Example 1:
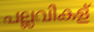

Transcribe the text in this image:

പല്ലവികള്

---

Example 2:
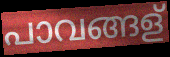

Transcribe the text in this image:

പാവങ്ങള്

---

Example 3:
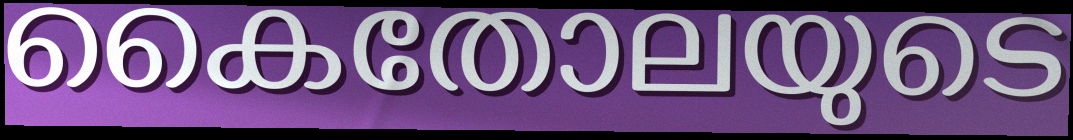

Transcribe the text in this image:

കൈതോലയുടെ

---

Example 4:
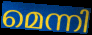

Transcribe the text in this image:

മെന്നി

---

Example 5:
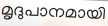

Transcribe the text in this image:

മൃദുപാനമായി